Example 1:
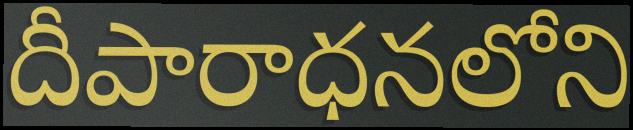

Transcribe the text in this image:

దీపారాధనలోని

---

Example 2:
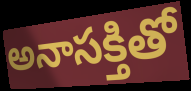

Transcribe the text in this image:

అనాసక్తితో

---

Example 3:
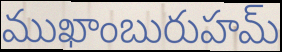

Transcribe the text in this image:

ముఖాంబురుహమ్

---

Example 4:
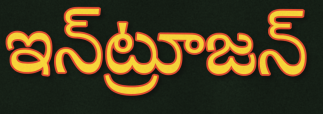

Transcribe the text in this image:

ఇన్‌ట్రూజన్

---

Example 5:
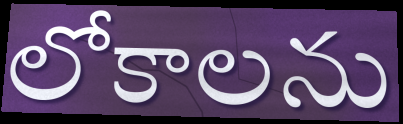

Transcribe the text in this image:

లోకాలను